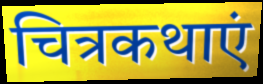
चित्रकथाएं